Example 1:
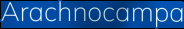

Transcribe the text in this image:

Arachnocampa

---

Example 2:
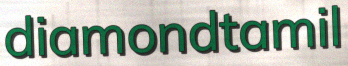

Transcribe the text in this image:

diamondtamil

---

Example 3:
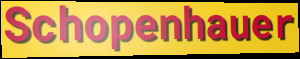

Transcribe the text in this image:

Schopenhauer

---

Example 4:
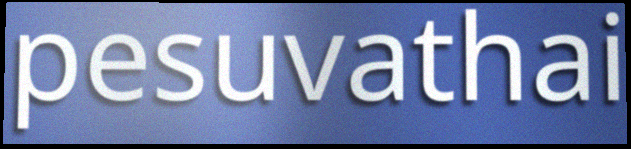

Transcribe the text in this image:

pesuvathai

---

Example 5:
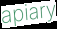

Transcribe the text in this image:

apiary